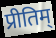
प्रीतिम्